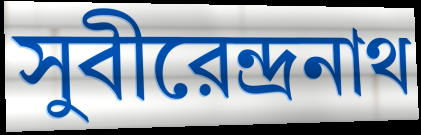
সুবীরেন্দ্রনাথ